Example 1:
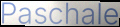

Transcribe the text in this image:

Paschale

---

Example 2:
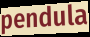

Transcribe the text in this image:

pendula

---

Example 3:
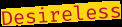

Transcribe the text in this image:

Desireless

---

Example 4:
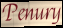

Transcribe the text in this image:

Penury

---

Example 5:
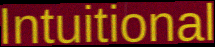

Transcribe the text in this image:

Intuitional